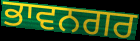
ਭਾਵਨਗਰ